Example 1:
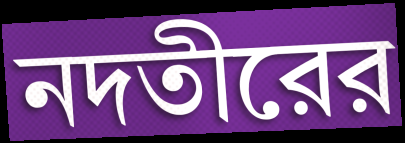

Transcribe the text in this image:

নদতীরের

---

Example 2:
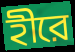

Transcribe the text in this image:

হীরে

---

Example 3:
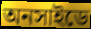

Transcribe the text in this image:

অনসাইডে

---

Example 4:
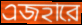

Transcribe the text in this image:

এজহারে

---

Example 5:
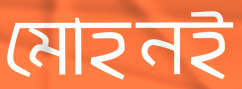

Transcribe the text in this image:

মোহনই